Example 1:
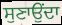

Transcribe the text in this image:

ਸੁਣਾਉਂਦਾ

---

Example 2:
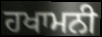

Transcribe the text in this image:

ਹਖਾਮਨੀ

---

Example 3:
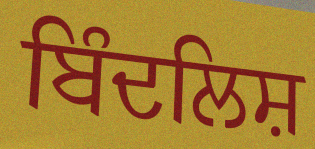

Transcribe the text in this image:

ਬਿੰਦਲਿਸ਼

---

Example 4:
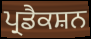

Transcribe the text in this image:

ਪ੍ਰਡੈਕਸ਼ਨ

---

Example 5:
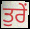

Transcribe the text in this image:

ਤੁਰੇਂ